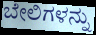
ಬೇಲಿಗಳನ್ನು